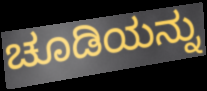
ಚೂಡಿಯನ್ನು